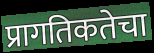
प्रागतिकतेचा